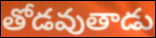
తోడవుతాడు